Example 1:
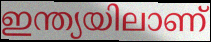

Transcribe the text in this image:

ഇന്ത്യയിലാണ്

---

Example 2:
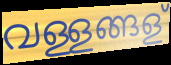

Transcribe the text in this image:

വള്ളങ്ങള്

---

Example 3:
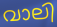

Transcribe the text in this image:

വാലി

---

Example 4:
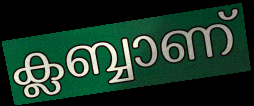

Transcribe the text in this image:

ക്ലബ്ബാണ്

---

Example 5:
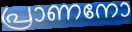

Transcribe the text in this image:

പ്രാണനോ